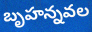
బృహన్నవల